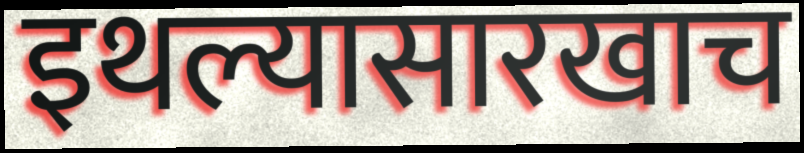
इथल्यासारखाच